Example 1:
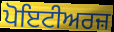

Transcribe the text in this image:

ਪੋਇਟੀਅਰਜ਼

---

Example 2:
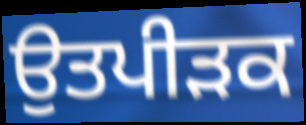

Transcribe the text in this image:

ਉਤਪੀੜਕ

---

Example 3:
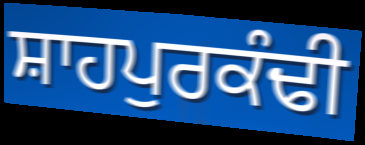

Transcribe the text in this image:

ਸ਼ਾਹਪੁਰਕੰਢੀ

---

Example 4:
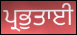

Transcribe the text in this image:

ਪ੍ਰਭੁਤਾਈ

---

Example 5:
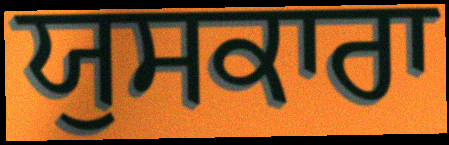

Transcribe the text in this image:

ਯੁਸਕਾਰਾ